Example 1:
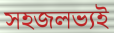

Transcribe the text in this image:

সহজলভ্যই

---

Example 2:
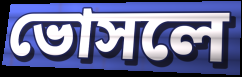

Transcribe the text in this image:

ভোসলে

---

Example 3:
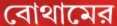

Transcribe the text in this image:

বোথামের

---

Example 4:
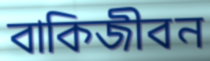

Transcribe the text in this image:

বাকিজীবন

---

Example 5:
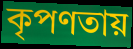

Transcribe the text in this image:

কৃপণতায়